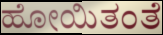
ಹೋಯಿತಂತೆ